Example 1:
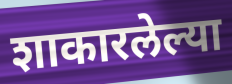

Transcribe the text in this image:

शाकारलेल्या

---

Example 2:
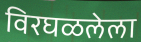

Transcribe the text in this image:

विरघळलेला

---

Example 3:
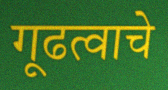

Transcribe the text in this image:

गूढत्वाचे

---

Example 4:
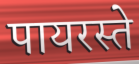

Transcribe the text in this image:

पायरस्ते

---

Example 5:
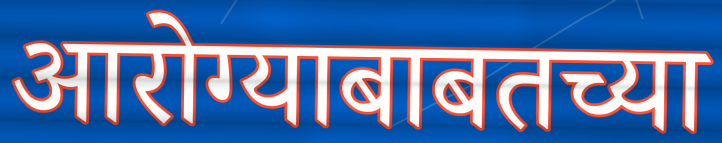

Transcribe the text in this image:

आरोग्याबाबतच्या